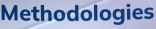
Methodologies